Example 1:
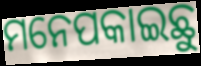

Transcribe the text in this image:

ମନେପକାଇଛୁ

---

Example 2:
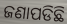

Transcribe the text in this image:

ଜଣାପଡିଛି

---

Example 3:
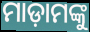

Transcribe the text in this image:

ମାଡ଼ାମଙ୍କୁ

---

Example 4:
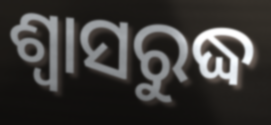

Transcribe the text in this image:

ଶ୍ୱାସରୁଦ୍ଧ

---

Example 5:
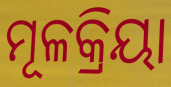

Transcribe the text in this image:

ମୂଳକ୍ରିୟା